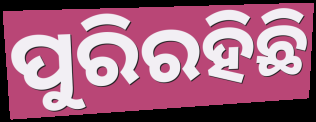
ପୁରିରହିଛି